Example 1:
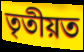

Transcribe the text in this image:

তৃতীয়ত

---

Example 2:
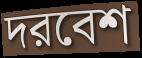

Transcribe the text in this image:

দরবেশ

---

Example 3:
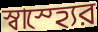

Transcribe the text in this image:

স্বাস্হ্যের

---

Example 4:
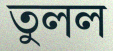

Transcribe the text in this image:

তুলল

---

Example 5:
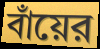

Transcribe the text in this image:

বাঁয়ের